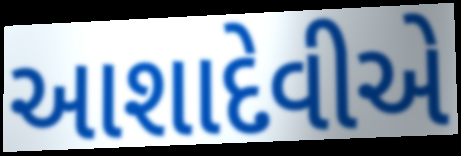
આશાદેવીએ